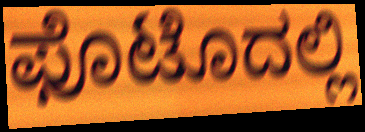
ಫೊಟೊದಲ್ಲಿ